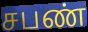
சபண்